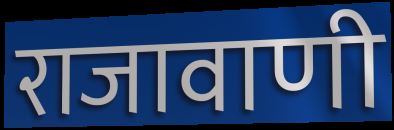
राजावाणी